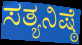
ಸತ್ಯನಿಷ್ಠೆ